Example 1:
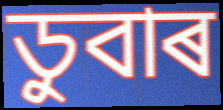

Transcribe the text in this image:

ডুবাৰ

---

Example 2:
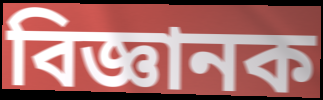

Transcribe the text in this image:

বিজ্ঞানক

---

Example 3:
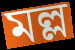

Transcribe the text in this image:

মল্ল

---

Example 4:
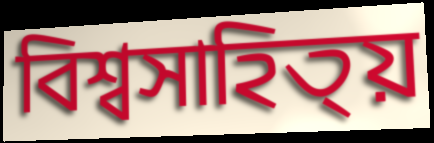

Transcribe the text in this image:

বিশ্বসাহিত্য়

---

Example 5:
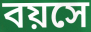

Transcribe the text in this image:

বয়সে